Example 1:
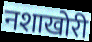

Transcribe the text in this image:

नशाखोरी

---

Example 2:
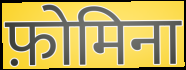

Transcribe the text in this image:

फ़ोमिना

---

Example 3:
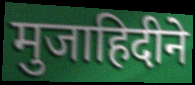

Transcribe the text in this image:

मुजाहिदीने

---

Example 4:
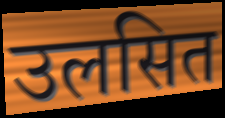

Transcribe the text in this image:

उलसित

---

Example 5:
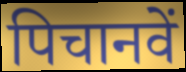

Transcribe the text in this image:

पिचानवें